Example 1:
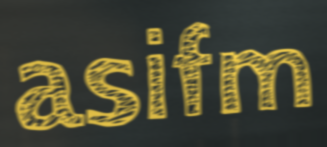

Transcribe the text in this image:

asifm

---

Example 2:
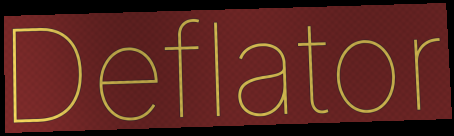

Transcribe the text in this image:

Deflator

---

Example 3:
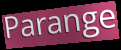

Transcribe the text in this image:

Parange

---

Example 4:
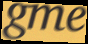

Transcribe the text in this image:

gme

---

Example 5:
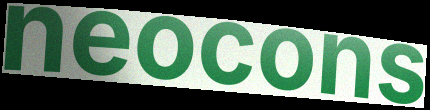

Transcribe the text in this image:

neocons